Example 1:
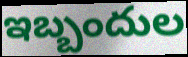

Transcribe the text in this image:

ఇబ్బందుల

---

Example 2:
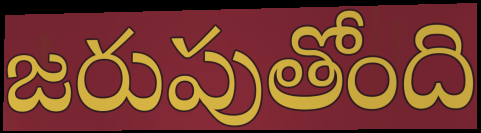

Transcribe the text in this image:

జరుపుతోంది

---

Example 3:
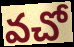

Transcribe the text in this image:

వచో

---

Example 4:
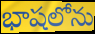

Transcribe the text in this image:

భాషలోను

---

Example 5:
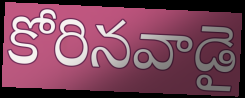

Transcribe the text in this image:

కోరినవాడై